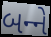
બન્‍ને